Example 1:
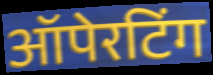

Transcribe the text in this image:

ऑपेरटिंग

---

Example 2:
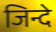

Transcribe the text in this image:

जिन्दे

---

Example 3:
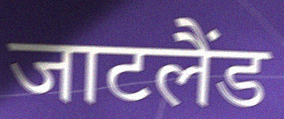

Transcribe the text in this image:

जाटलैंड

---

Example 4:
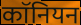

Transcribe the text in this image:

कॉनियन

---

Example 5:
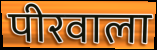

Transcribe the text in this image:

पीरवाला